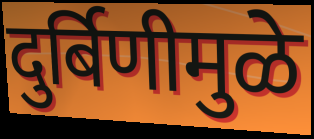
दुर्बिणीमुळे